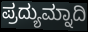
ಪ್ರದ್ಯುಮ್ನಾದಿ